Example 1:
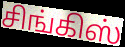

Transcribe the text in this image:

சிங்கிஸ்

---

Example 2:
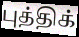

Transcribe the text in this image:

புத்திக்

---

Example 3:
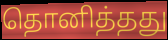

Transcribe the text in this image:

தொனித்தது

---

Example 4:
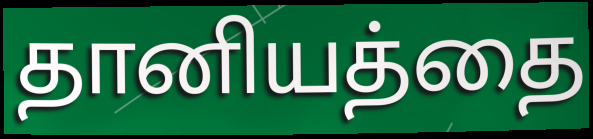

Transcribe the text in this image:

தானியத்தை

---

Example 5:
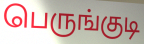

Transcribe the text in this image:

பெருங்குடி